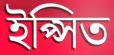
ইপ্সিত